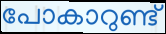
പോകാറുണ്ട്